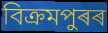
বিক্ৰমপুৰৰ